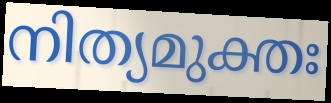
നിത്യമുക്തഃ